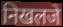
निखलजे